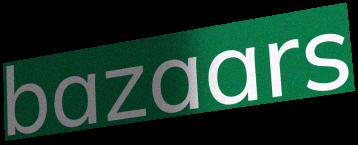
bazaars